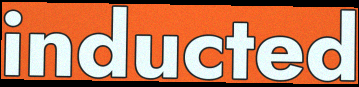
inducted